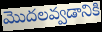
మొదలవ్వడానికి